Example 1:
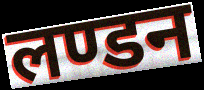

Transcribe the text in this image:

लण्डन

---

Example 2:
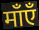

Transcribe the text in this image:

माँएँ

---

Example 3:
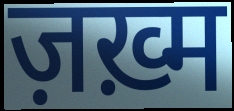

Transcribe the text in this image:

ज़ख़्म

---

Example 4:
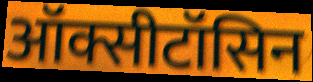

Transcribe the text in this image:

ऑक्सीटॉसिन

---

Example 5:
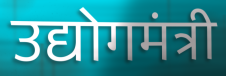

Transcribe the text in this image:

उद्योगमंत्री